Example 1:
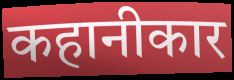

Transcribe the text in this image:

कहानीकार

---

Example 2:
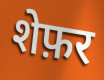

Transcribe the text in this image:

शेफ़र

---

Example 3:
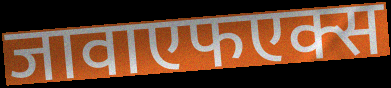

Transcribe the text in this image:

जावाएफएक्स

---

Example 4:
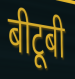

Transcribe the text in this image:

बीटूबी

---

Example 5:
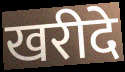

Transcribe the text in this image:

खरीदे